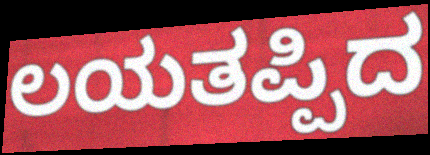
ಲಯತಪ್ಪಿದ